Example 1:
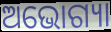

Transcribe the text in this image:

ଅଭୋଗ୍ୟା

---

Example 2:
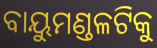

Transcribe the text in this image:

ବାୟୁମଣ୍ଡଳଟିକୁ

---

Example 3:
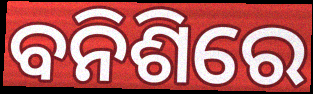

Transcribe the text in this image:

ବନିଶିରେ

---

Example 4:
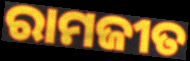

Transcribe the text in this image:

ରାମଜୀତ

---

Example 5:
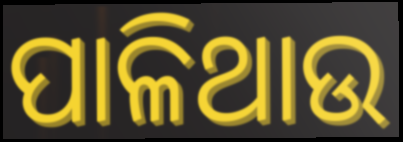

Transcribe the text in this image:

ପାଳିଥାଉ